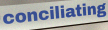
conciliating